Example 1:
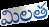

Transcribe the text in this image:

మిలత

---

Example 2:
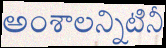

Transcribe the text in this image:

అంశాలన్నిటినీ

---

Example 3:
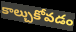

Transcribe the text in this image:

కాల్చుకోవడం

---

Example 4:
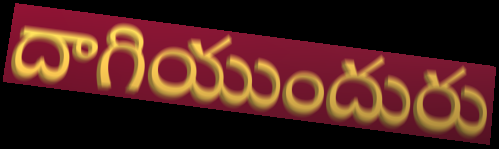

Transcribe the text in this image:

దాగియుందురు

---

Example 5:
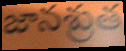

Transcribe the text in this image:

జానశ్రుత